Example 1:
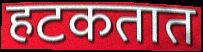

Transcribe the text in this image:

हटकतात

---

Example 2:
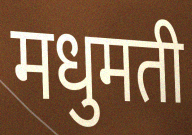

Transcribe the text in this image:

मधुमती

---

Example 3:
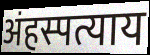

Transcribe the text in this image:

अंहस्पत्याय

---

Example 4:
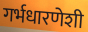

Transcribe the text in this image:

गर्भधारणेशी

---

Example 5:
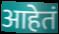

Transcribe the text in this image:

आहेतं